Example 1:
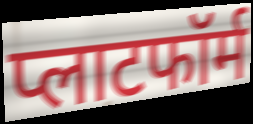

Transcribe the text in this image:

प्लाटफॉर्म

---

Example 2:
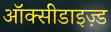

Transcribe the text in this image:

ऑक्सीडाइज़्ड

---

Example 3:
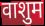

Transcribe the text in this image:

वाशुम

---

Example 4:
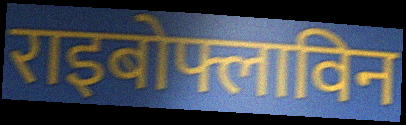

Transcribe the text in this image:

राइबोफ्लाविन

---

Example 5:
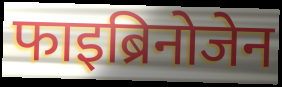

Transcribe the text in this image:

फाइब्रिनोजेन